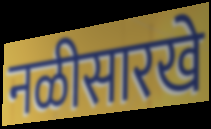
नळीसारखे